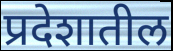
प्रदेशातील